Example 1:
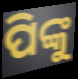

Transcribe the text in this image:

ପିଙ୍କୁ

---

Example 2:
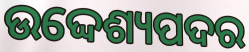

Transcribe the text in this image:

ଉଦ୍ଦେଶ୍ୟପଦର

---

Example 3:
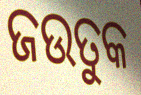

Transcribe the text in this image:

ଜଉତୁକ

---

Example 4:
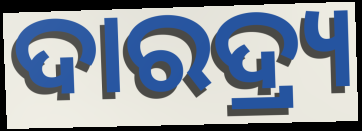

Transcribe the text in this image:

ଦାରଦ୍ର୍ୟ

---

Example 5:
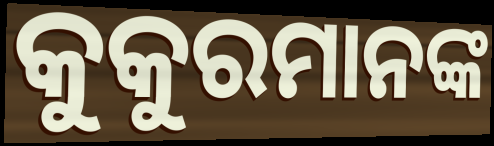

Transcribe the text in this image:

କୁକୁରମାନଙ୍କ